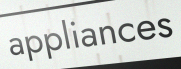
appliances